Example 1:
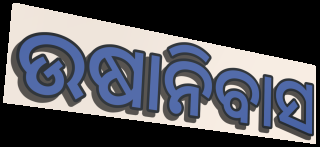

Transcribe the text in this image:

ଉଷାନିବାସ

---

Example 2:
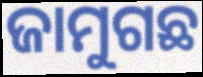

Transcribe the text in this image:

ଜାମୁଗଛ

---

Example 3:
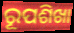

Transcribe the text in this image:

ରୂପଶିଖା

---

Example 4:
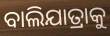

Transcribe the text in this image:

ବାଲିଯାତ୍ରାକୁ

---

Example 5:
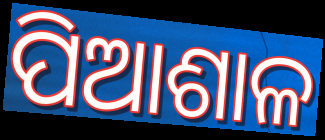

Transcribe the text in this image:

ପିଆଶାଳ